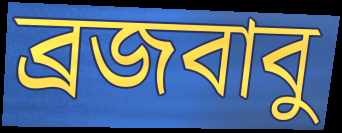
ব্রজবাবু